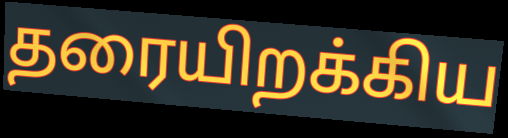
தரையிறக்கிய